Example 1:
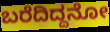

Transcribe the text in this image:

ಬರೆದಿದ್ದನೋ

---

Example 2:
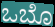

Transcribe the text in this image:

ಒಬೊ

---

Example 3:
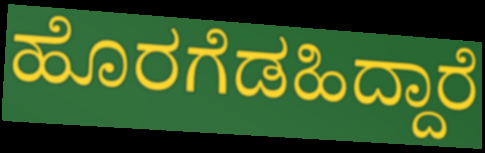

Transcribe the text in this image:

ಹೊರಗೆಡಹಿದ್ದಾರೆ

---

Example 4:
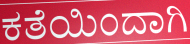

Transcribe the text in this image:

ಕತೆಯಿಂದಾಗಿ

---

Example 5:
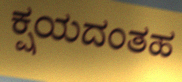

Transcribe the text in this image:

ಕ್ಷಯದಂತಹ